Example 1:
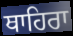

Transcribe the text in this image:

ਥਾਹਿਰਾ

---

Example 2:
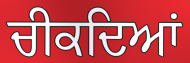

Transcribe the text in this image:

ਚੀਕਦਿਆਂ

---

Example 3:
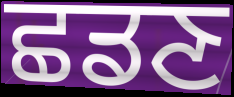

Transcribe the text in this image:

ਛਡਣ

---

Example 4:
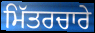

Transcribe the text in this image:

ਮਿੱਤਰਚਾਰੇ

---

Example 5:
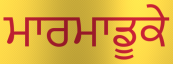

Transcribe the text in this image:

ਮਾਰਮਾਡੂਕੇ